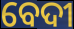
ବେଦୀ